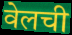
वेलची